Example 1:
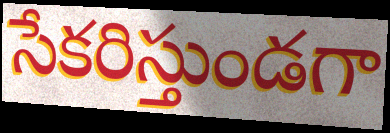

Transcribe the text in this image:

సేకరిస్తుండగా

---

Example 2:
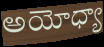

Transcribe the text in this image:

అయోధ్యా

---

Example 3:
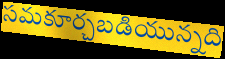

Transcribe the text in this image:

సమకూర్చబడియున్నది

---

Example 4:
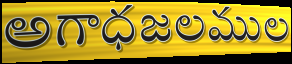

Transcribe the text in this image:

అగాధజలముల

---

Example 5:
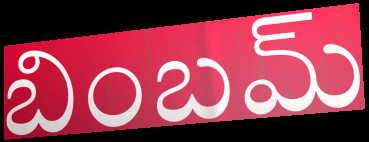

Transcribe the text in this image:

బింబమ్